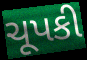
ચૂપકી